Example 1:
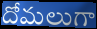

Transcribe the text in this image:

దోమలుగా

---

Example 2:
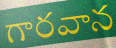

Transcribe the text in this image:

గారవాన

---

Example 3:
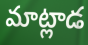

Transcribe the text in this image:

మాట్లాడ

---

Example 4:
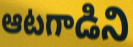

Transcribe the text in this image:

ఆటగాడిని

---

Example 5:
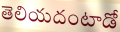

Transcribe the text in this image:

తెలియదంటాడో